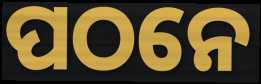
ପଠନେ